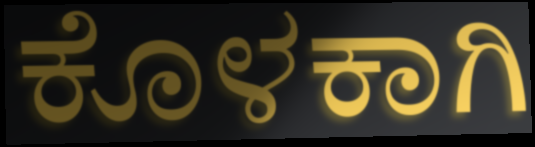
ಕೊಳಕಾಗಿ